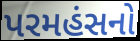
પરમહંસનો